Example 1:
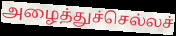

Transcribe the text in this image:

அழைத்துச்செல்லச்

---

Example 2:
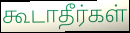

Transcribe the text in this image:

கூடாதீர்கள்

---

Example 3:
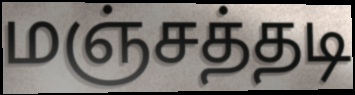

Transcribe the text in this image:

மஞ்சத்தடி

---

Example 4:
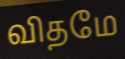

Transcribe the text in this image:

விதமே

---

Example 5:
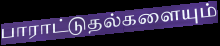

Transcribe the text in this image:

பாராட்டுதல்களையும்